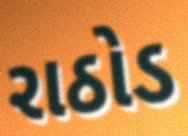
રાઠોડ